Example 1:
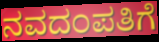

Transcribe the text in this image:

ನವದಂಪತಿಗೆ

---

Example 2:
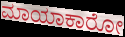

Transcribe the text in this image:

ಮಾಯಾಕಾರೋ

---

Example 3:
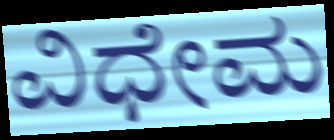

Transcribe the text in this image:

ವಿಧೇಮ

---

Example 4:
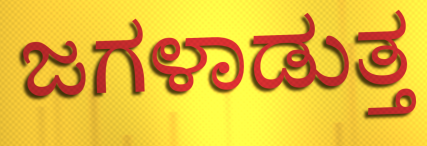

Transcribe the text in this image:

ಜಗಳಾಡುತ್ತ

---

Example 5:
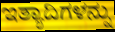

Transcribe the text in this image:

ಇತ್ಯಾದಿಗಳನ್ನು